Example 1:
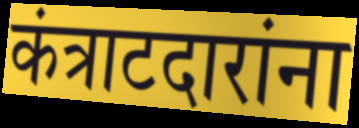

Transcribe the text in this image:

कंत्राटदारांना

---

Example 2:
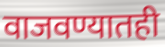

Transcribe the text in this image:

वाजवण्यातही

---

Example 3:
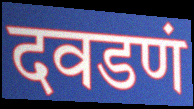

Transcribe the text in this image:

दवडणं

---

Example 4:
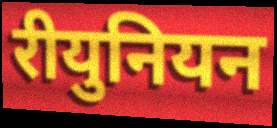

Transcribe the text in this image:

रीयुनियन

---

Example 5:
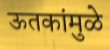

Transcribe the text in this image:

ऊतकांमुळे